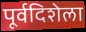
पूर्वदिशेला